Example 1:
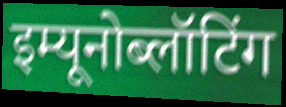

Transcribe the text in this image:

इम्यूनोब्लॉटिंग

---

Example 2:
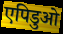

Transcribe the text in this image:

एपिडुओ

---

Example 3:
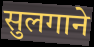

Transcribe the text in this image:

सुलगाने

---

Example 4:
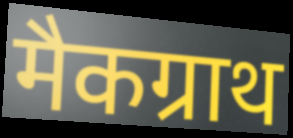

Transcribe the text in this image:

मैकग्राथ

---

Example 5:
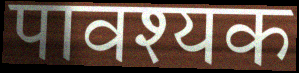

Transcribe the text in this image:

पावश्यक